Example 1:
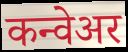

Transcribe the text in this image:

कन्वेअर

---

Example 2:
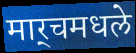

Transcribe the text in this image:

मार्चमधले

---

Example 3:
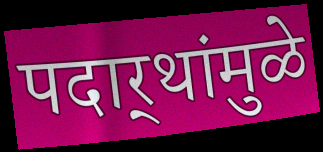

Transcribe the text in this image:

पदार्थांमुळे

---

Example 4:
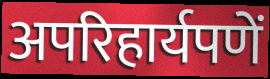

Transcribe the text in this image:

अपरिहार्यपणें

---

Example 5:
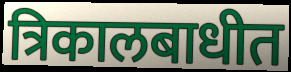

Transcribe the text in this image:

त्रिकालबाधीत